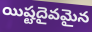
యిష్టదైవమైన